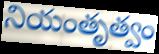
నియంతృత్వం